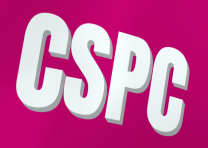
CSPC